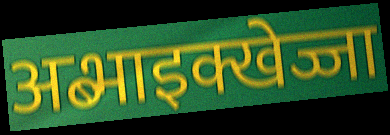
अब्भाइक्खेज्जा